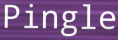
Pingle